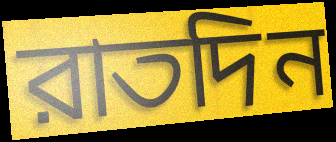
রাতদিন